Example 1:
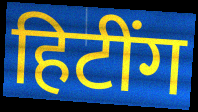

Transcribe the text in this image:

हिटींग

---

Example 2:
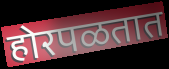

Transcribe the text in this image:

होरपळतात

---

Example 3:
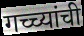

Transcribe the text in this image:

गच्च्यांची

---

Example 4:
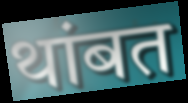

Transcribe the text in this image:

थांबत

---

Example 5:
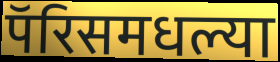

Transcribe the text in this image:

पॅरिसमधल्या